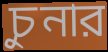
চুনার